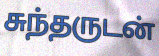
சுந்தருடன்